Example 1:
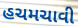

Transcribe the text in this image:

હચમચાવી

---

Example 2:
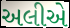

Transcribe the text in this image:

અલીએ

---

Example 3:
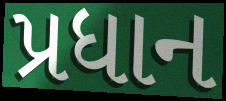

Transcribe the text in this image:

પ્રધાન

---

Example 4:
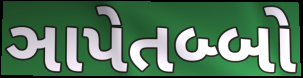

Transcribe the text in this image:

ઞાપેતબ્બો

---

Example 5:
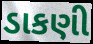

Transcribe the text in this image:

ડાકણી